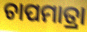
ଚାପମାତ୍ରା